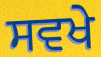
ਸਵਖੇ